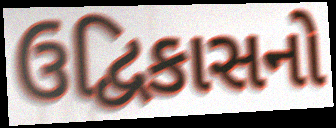
ઉદ્વિકાસનો